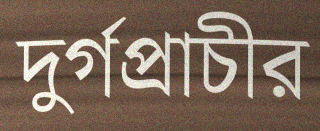
দুর্গপ্রাচীর